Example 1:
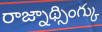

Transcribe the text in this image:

రాజ్నాథ్సింగ్కు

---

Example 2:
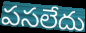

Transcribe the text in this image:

పసలేదు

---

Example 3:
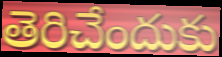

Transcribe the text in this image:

తెరిచేందుకు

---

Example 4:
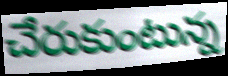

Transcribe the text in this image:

చేరుకుంటున్న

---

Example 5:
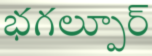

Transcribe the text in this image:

భగల్పూర్